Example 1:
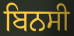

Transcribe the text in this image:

ਬਿਨਸੀ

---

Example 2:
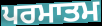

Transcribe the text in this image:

ਪਰਮਾਤਮ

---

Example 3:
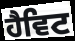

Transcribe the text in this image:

ਹੈਵਿਟ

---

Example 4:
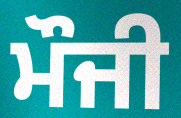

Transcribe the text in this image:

ਮੌਜੀ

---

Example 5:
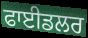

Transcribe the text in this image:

ਫਾਈਡਲਰ